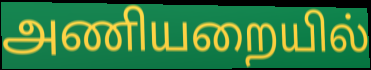
அணியறையில்